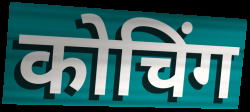
कोचिंग